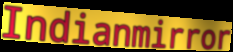
Indianmirror